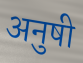
अनुषी